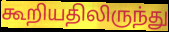
கூறியதிலிருந்து